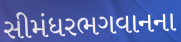
સીમંધરભગવાનના